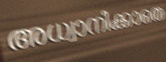
അധ്വാനിക്കാതെ